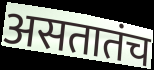
असतातंच